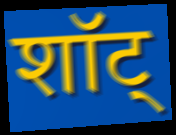
शॉट्